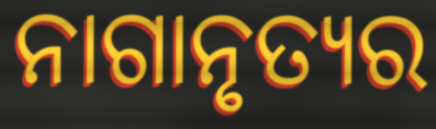
ନାଗାନୃତ୍ୟର